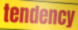
tendency